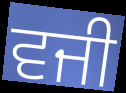
ਵਜੀ